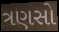
ત્રણસો